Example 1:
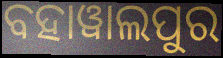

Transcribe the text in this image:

ବହାୱାଲପୁର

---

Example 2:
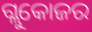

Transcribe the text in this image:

ଗ୍ଲୁକୋଜର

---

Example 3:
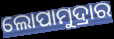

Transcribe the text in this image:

ଲୋପାମୁଦ୍ରାର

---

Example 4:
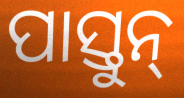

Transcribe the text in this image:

ପାସ୍ତୁନ୍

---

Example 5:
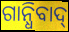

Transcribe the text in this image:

ଗାନ୍ଧିବାଦ୍